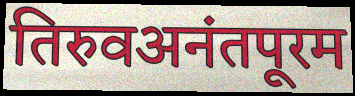
तिरुवअनंतपूरम